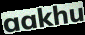
aakhu